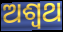
ଅଶ୍ବଥ